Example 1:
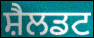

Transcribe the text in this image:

ਸ਼ੈਲਡਟ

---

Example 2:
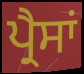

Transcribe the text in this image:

ਪ੍ਰੈਸਾਂ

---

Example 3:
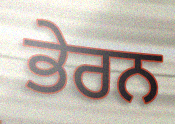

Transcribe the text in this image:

ਭੇਰਨ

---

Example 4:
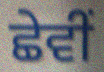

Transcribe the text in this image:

ਛੇਵੀਂ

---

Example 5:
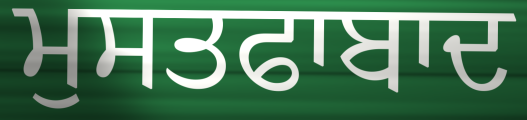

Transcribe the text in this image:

ਮੁਸਤਫਾਬਾਦ